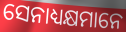
ସେନାଧ୍ୟକ୍ଷମାନେ